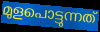
മുളപൊട്ടുന്നത്